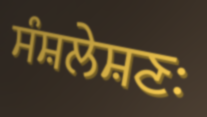
ਸੰਸ਼ਲੇਸ਼ਣਃ